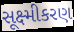
સૂક્ષ્મીકરણ